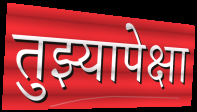
तुझ्यापेक्षा